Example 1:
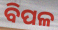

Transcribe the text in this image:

ବିପଳ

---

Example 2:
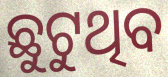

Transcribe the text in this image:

ଛୁଟୁଥିବ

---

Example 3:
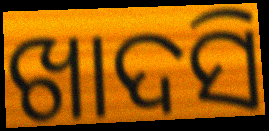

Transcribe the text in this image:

ଖାଦସି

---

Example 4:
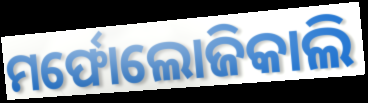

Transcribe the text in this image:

ମର୍ଫୋଲୋଜିକାଲି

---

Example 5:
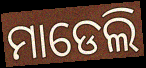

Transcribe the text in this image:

ମାଡେଲି